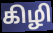
கிழி